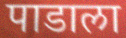
पाडाला